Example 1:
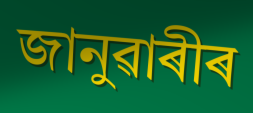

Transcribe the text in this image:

জানুৱাৰীৰ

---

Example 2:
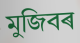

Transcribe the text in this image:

মুজিবৰ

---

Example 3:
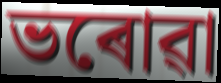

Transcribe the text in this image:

ভৰোৱা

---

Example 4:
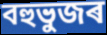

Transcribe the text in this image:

বহুভুজৰ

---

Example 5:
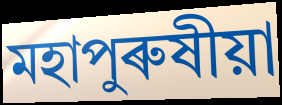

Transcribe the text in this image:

মহাপুৰুষীয়া